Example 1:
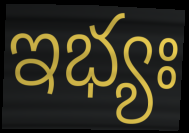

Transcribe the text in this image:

ఇభ్యః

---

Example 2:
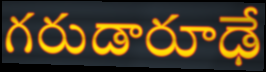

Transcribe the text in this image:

గరుడారూఢే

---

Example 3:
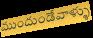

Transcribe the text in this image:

ముందుండేవాళ్ళు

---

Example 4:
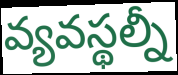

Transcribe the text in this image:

వ్యవస్థల్నీ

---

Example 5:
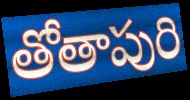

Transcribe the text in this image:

తోతాపురి